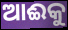
ଆଈକୁ